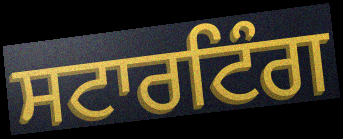
ਸਟਾਰਟਿੰਗ